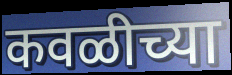
कवळीच्या